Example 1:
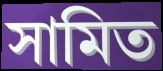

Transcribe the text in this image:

সামিত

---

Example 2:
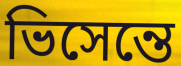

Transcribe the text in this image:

ভিসেন্তে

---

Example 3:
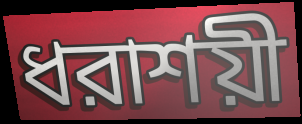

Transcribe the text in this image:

ধরাশয়ী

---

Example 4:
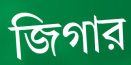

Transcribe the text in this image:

জিগার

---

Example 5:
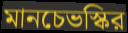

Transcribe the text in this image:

মানচেভস্কির